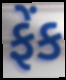
ફેંક